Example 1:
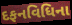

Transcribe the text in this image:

દફનવિધિના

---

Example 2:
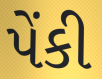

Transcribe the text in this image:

પેંકી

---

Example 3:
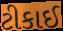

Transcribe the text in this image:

ટીકાઈ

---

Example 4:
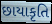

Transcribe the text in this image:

છાયાકૃતિ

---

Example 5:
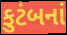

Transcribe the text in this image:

કુટંબનાં